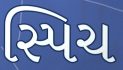
સ્પિચ